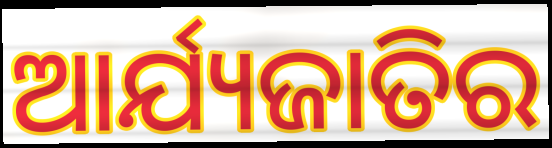
ଆର୍ଯ୍ୟଜାତିର